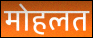
मोहलत